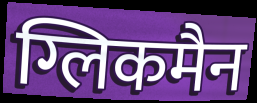
ग्लिकमैन